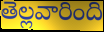
తెల్లవారింది